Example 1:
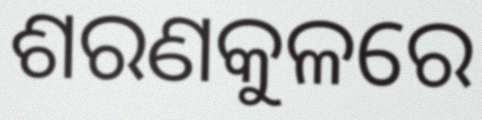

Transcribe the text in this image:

ଶରଣକୁଳରେ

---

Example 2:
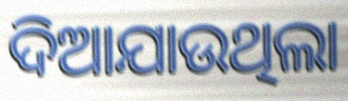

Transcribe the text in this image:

ଦିଆଯାଉଥିଲା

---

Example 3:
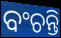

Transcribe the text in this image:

ବଂଚନ୍ତି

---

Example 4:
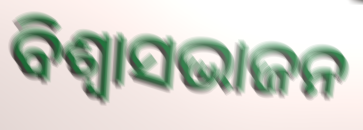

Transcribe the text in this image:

ବିଶ୍ଵାସଭାଜନ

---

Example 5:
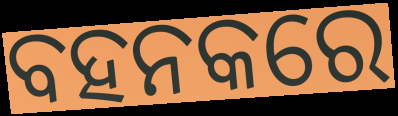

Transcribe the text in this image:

ବହନକରେ